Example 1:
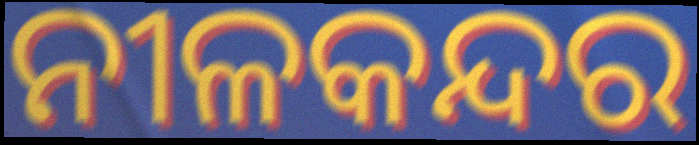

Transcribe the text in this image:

ନୀଳକନ୍ଦର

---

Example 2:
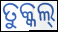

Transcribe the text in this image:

ତୁକ୍କଲ୍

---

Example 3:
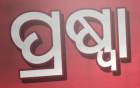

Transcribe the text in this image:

ପ୍ରଷ୍ୱା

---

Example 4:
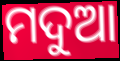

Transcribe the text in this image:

ମଦୁଆ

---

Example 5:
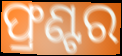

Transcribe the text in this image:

ଫ୍ରଣ୍ଟର